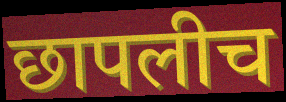
छापलीच